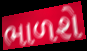
ભાળશે